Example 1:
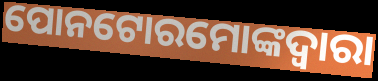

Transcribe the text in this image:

ପୋନଟୋରମୋଙ୍କଦ୍ୱାରା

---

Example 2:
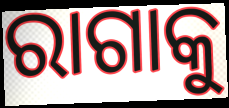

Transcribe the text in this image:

ରାଗାକୁ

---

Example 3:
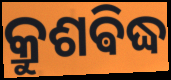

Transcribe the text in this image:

କ୍ରୁଶଵିଦ୍ଧ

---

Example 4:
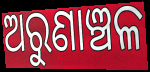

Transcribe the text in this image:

ଅରୁଣାଞ୍ଚଳ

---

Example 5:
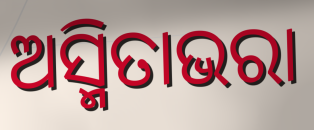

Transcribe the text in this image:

ଅସ୍ମିତାଭରା